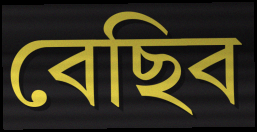
বেছিব